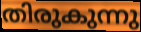
തിരുകുന്നു